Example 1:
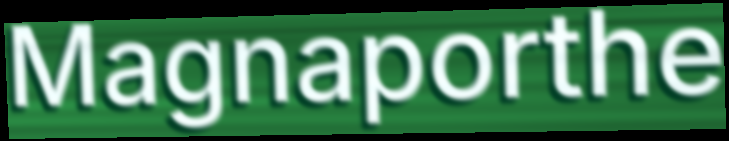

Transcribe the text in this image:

Magnaporthe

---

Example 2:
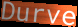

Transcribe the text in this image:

Durve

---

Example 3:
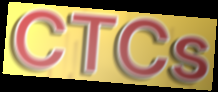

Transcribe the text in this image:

CTCs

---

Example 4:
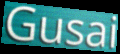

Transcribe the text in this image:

Gusai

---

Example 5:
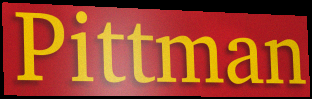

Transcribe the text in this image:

Pittman